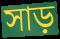
সাড়